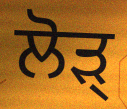
ਲੋੜ੍